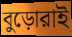
বুড়োরাই